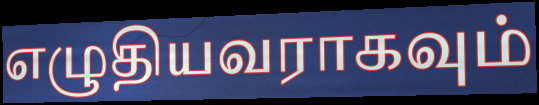
எழுதியவராகவும்